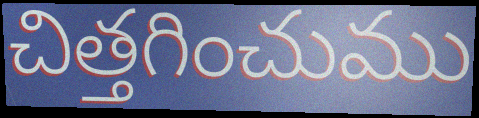
చిత్తగించుము